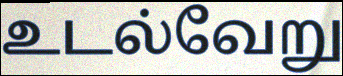
உடல்வேறு